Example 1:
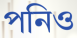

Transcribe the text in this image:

পনিও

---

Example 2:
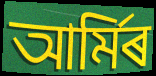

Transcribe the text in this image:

আৰ্মিৰ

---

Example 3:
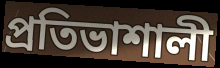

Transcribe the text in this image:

প্ৰতিভাশালী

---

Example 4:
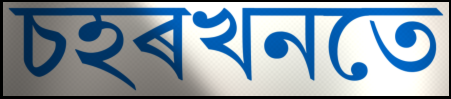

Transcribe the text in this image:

চহৰখনতে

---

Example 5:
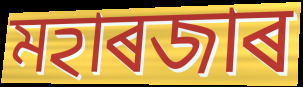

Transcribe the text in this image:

মহাৰজাৰ